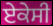
ਏਕੇਸੀ